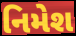
નિમેશ